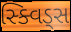
સ્ક્વિડ્સ